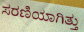
ಸರಣಿಯಾಗಿತ್ತು